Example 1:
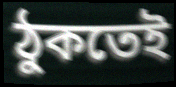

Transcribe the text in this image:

ঠুকতেই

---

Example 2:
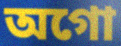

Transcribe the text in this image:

অগো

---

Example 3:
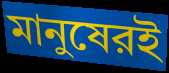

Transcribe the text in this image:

মানুষেরই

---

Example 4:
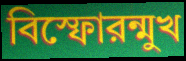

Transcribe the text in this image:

বিস্ফোরন্মুখ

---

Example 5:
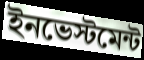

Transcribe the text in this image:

ইনভেস্টমেন্ট